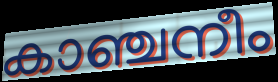
കാഞ്ചനീം